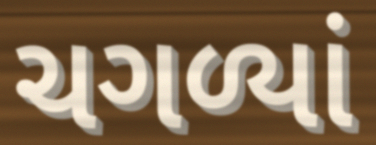
ચગળ્યાં